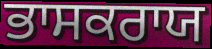
ਭਾਸਕਰਾਯ